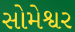
સોમેશ્વર